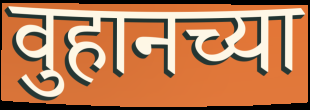
वुहानच्या